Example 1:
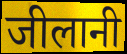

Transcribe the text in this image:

जीलानी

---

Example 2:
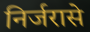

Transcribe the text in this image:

निर्जरासे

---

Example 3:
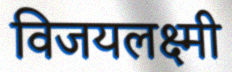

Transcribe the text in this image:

विजयलक्ष्मी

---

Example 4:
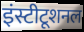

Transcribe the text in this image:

इंस्टीटूशनल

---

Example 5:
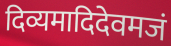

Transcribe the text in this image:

दिव्यमादिदेवमजं